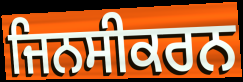
ਜਿਨਸੀਕਰਨ